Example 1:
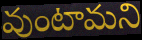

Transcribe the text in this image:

వుంటామని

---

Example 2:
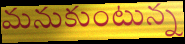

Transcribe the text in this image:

మనుకుంటున్న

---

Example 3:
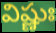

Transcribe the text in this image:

విష్ణుః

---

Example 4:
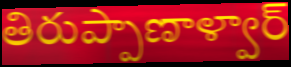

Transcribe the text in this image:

తిరుప్పాణాళ్వార్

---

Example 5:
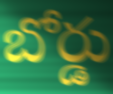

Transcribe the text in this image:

బోర్డు